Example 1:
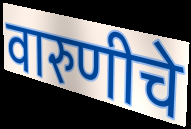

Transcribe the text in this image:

वारुणीचे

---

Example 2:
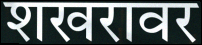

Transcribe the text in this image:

शखरावर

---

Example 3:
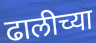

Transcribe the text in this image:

ढालीच्या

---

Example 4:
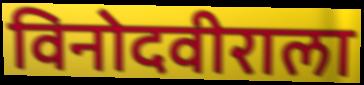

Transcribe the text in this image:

विनोदवीराला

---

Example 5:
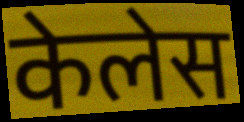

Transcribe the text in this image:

केलेस